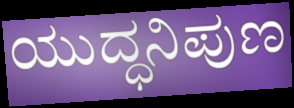
ಯುದ್ಧನಿಪುಣ